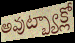
అవుట్బ్యాక్లో